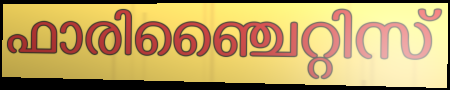
ഫാരിഞ്ചൈറ്റിസ്